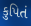
કુપિતં